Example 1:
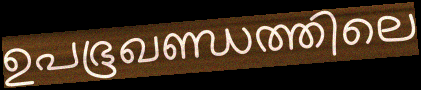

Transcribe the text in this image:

ഉപഭൂഖണ്ഡത്തിലെ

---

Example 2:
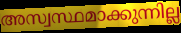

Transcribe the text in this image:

അസ്വസ്ഥമാക്കുന്നില്ല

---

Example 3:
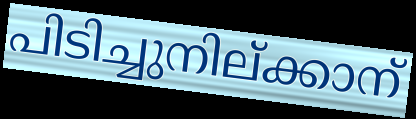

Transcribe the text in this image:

പിടിച്ചുനില്ക്കാന്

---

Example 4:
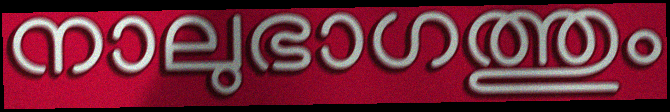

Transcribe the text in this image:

നാലുഭാഗത്തും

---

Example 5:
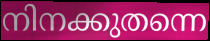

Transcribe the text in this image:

നിനക്കുതന്നെ